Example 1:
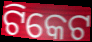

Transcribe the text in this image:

ଟିକେଟ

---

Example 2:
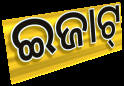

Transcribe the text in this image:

ଇଜାଟ୍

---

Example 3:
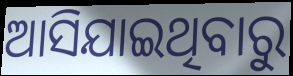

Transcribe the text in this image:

ଆସିଯାଇଥିବାରୁ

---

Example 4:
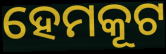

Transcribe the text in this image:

ହେମକୂଟ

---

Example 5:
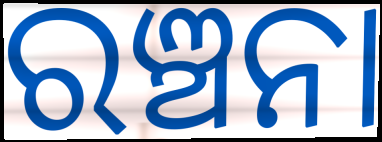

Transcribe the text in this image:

ରଞ୍ଚନା